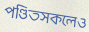
পণ্ডিতসকলেও